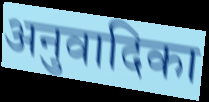
अनुवादिका